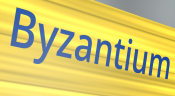
Byzantium